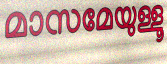
മാസമേയുള്ളൂ